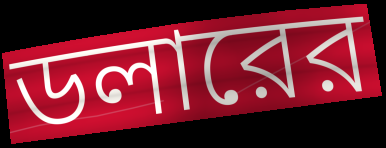
ডলারের